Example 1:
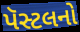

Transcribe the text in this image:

પૅસ્ટલનો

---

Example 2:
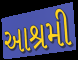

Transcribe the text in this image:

આશ્રમી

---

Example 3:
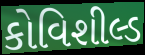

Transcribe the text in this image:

કોવિશીલ્ડ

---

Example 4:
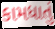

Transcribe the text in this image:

કામધાતું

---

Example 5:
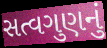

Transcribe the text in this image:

સત્વગુણનું